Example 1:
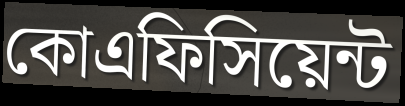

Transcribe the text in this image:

কোএফিসিয়েন্ট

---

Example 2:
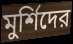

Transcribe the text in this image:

মুর্শিদের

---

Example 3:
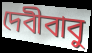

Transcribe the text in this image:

দেবীবাবু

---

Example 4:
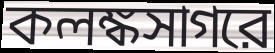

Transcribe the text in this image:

কলঙ্কসাগরে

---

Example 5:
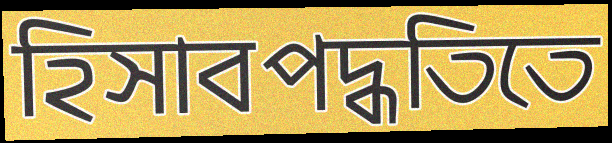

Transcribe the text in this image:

হিসাবপদ্ধতিতে